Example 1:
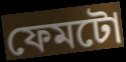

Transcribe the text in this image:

ফেমটো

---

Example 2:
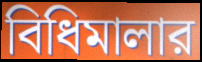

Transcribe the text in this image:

বিধিমালার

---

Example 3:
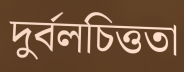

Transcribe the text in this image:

দুর্বলচিত্ততা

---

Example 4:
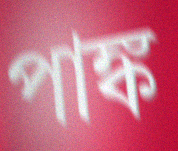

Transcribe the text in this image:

পাঙ্ক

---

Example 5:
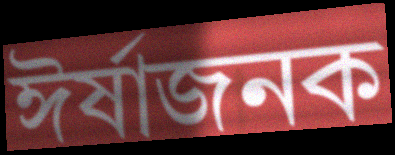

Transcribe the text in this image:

ঈর্ষাজনক